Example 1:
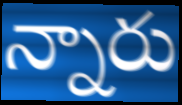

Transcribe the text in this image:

న్నారు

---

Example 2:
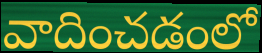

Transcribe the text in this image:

వాదించడంలో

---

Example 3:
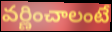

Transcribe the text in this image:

వర్ణించాలంటే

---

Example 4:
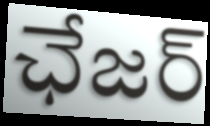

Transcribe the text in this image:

ఛేజర్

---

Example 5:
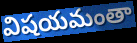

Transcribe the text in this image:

విషయమంతా